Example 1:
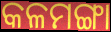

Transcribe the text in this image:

କଳମଙ୍ଗା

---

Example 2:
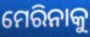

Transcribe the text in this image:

ମେରିନାକୁ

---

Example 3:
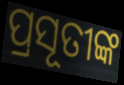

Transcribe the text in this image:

ପ୍ରସୂତୀଙ୍କ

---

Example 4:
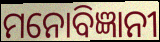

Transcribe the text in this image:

ମନୋବିଜ୍ଞାନୀ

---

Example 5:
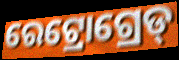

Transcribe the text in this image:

ରେଟ୍ରୋଗ୍ରେଡ୍